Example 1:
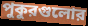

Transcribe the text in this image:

পুকুরগুলোর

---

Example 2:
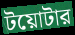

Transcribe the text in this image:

টয়োটার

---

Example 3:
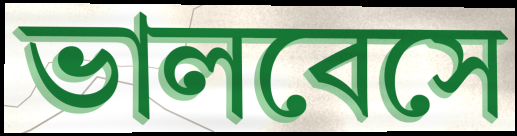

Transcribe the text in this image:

ভালবেসে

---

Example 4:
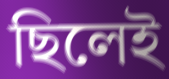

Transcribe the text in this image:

ছিলেই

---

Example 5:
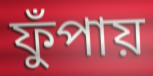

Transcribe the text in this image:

ফুঁপায়